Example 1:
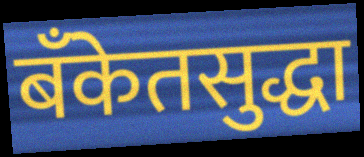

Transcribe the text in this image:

बँकेतसुद्धा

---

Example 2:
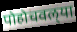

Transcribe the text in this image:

पोहोचवल्या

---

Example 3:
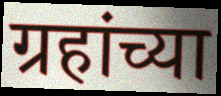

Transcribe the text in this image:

ग्रहांच्या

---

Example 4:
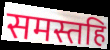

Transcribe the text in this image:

समस्तहि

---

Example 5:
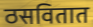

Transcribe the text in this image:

ठसवितात